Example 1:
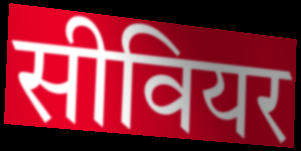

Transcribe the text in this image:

सीवियर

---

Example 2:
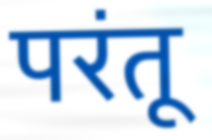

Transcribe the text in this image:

परंतू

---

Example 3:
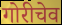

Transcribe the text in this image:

गोरीचेव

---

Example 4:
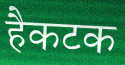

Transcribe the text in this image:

हैकटक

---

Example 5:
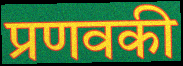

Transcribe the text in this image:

प्रणवकी